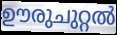
ഊരുചുറ്റൽ